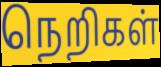
நெறிகள்